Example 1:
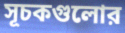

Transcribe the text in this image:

সূচকগুলোর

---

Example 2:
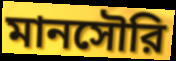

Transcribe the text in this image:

মানসৌরি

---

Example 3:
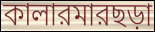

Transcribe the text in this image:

কালারমারছড়া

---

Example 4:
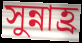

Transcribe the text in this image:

সুন্নাহ্র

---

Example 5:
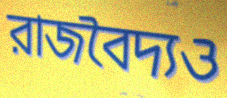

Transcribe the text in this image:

রাজবৈদ্যও